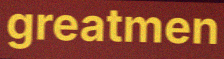
greatmen